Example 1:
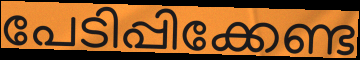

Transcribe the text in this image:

പേടിപ്പിക്കേണ്ട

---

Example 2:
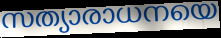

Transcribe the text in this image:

സത്യാരാധനയെ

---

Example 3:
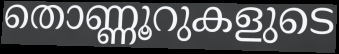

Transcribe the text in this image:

തൊണ്ണൂറുകളുടെ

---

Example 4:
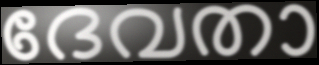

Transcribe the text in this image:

ദേവതാ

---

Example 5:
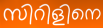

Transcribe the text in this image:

സിറിളിനെ